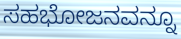
ಸಹಭೋಜನವನ್ನೂ